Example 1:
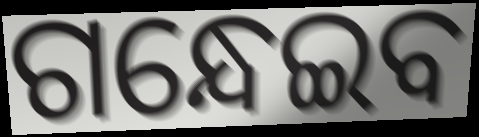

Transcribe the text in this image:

ଗନ୍ଧେଇବ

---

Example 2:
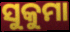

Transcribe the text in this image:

ସୁକୁମା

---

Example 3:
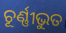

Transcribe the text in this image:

ଚୂର୍ଣ୍ଣୀଭୁତ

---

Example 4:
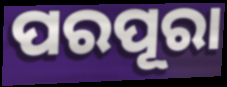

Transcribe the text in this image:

ପରପୂରା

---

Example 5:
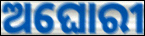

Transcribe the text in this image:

ଅଘୋରୀ